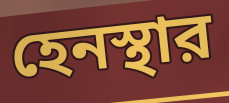
হেনস্থার